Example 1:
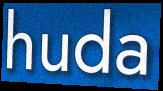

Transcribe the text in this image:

huda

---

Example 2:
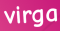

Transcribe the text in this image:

virga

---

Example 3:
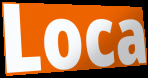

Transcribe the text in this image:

Loca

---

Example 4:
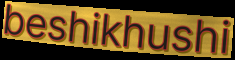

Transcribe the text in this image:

beshikhushi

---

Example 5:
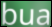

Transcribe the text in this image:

bua